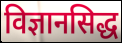
विज्ञानसिद्ध